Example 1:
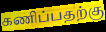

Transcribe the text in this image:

கணிப்பதற்கு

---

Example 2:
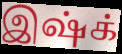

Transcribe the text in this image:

இஷ்க்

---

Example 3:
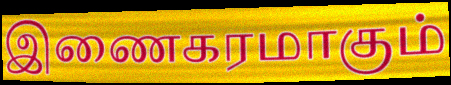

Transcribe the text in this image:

இணைகரமாகும்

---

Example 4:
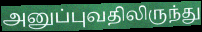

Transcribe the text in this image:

அனுப்புவதிலிருந்து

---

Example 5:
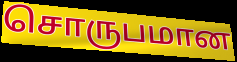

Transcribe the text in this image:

சொருபமான